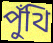
পুঁথি